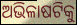
ଅଭିଳାଷଟିକୁ